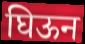
घिऊन